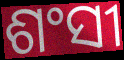
ଶଂସୀ